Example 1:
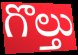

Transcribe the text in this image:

గొల్తు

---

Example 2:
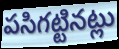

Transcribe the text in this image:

పసిగట్టినట్లు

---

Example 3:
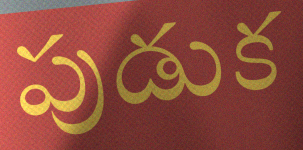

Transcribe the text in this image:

పుడుక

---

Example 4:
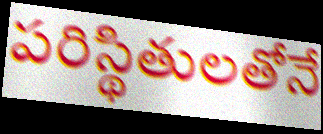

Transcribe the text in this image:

పరిస్థితులతోనే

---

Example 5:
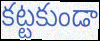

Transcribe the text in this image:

కట్టకుండా